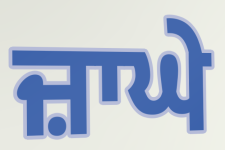
ਜ਼ਾਘੇ